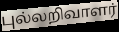
புல்லறிவாளர்